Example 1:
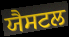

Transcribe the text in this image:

ਯੈਸਟਲ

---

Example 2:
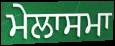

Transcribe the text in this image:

ਮੇਲਾਸਮਾ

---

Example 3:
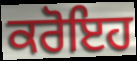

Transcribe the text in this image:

ਕਰੋਇਹ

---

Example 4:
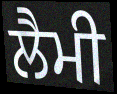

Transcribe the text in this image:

ਲੈਮੀ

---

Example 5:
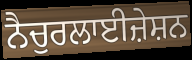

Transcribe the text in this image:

ਨੈਚੁਰਲਾਈਜ਼ੇਸ਼ਨ